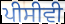
ਪੀਸੀਵੀ